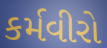
કર્મવીરો